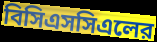
বিসিএসসিএলের